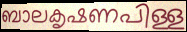
ബാലകൃഷണപിള്ള